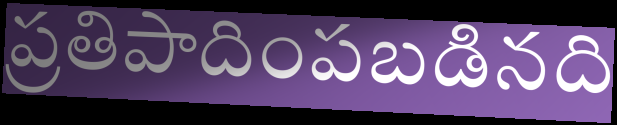
ప్రతిపాదింపబడినది